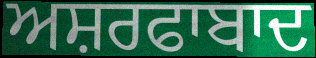
ਅਸ਼ਰਫਾਬਾਦ